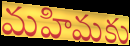
మహిమకు